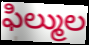
ఫిల్ముల